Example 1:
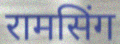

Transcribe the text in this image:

रामसिंग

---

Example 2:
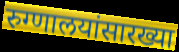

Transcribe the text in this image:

रुग्णालयांसारख्या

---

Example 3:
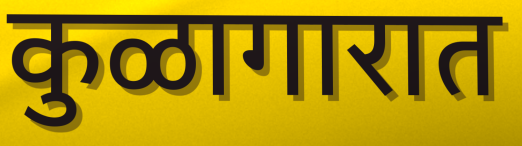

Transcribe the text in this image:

कुळागारात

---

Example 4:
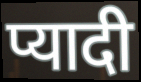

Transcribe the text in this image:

प्यादी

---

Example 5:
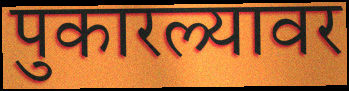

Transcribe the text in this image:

पुकारल्यावर